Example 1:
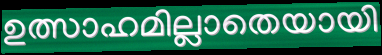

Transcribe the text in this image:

ഉത്സാഹമില്ലാതെയായി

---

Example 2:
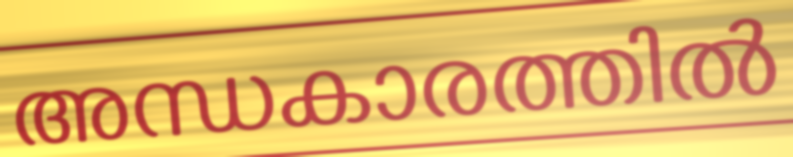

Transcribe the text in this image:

അന്ധകാരത്തിൽ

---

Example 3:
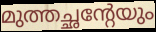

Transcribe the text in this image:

മുത്തച്ഛന്റേയും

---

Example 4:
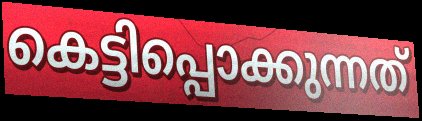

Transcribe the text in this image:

കെട്ടിപ്പൊക്കുന്നത്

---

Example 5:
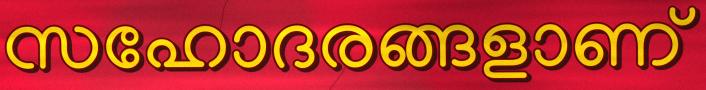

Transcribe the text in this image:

സഹോദരങ്ങളാണ്